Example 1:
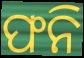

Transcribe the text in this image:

ଫନି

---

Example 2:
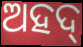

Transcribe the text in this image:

ଅହଦ୍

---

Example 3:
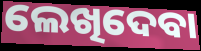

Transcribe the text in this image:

ଲେଖିଦେବା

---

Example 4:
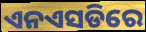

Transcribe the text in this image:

ଏନଏସଡିରେ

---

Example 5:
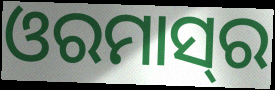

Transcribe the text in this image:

ଓରମାସ୍‌ର